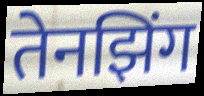
तेनझिंग